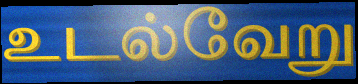
உடல்வேறு